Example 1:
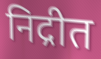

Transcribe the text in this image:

निद्रीत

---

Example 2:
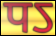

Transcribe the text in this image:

पऽ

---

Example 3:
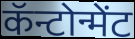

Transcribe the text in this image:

कॅन्टोन्मेंट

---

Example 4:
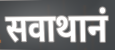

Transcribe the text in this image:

सवाथानं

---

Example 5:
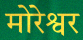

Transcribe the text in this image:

मोरेश्वर